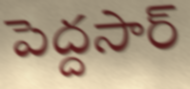
పెద్దసార్